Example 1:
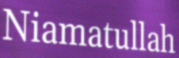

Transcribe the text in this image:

Niamatullah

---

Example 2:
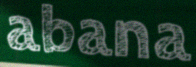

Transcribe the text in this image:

abana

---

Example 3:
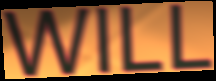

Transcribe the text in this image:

WILL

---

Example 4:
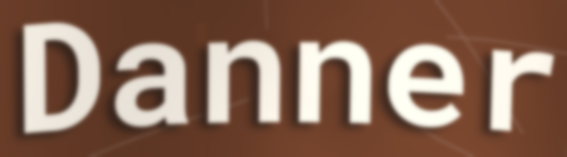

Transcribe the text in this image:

Danner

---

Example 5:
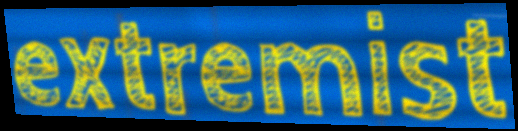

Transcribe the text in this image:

extremist